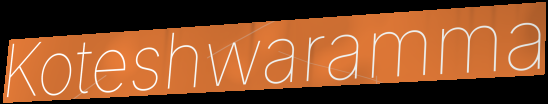
Koteshwaramma